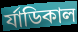
র্যাডিকাল